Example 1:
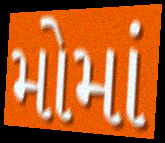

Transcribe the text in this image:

મોમાં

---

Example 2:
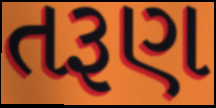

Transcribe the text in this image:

તરૂણ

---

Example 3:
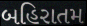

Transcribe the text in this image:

બહિરાતમ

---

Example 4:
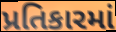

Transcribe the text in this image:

પ્રતિકારમાં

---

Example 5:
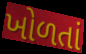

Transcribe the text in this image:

ખોળતાં